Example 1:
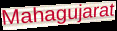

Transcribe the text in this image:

Mahagujarat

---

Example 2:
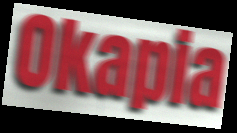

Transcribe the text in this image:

Okapia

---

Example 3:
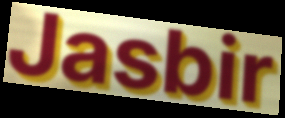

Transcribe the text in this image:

Jasbir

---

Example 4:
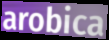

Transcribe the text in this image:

arobica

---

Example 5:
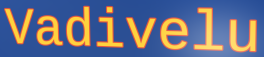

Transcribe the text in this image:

Vadivelu